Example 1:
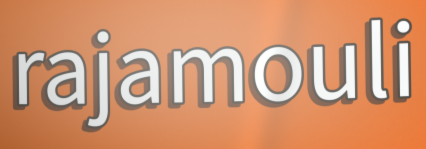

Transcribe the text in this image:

rajamouli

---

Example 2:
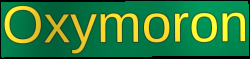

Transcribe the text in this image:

Oxymoron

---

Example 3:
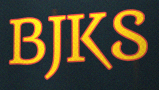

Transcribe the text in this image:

BJKS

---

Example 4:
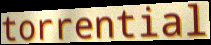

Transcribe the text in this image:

torrential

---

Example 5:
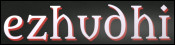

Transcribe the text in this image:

ezhudhi